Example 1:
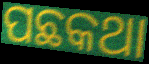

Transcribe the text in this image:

ପଛକଥା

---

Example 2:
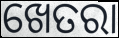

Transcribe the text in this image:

ଖେତରା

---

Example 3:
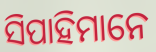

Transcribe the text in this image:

ସିପାହିମାନେ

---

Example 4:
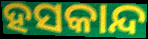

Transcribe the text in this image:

ହସକାନ୍ଦ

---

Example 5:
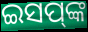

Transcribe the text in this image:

ଇସପ୍‌ଙ୍କ